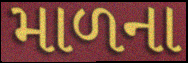
માળના